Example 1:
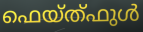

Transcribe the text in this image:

ഫെയ്ത്ഫുൾ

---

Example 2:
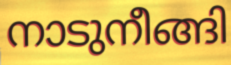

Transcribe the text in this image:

നാടുനീങ്ങി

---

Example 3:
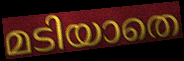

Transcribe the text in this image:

മടിയാതെ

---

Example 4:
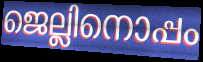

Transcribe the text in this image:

ജെല്ലിനൊപ്പം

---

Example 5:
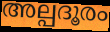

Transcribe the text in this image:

അല്പദൂരം